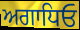
ਅਗਾਧਿਓ